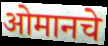
ओमानचे